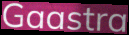
Gaastra